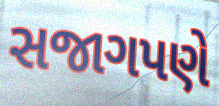
સજાગપણે